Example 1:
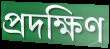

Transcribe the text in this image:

প্রদক্ষিণ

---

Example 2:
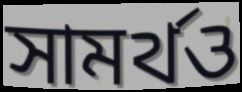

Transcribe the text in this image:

সামর্থও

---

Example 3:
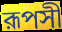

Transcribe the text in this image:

রূপসী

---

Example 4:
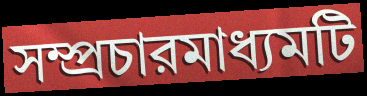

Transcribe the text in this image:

সম্প্রচারমাধ্যমটি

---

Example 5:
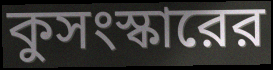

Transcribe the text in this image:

কুসংস্কারের